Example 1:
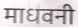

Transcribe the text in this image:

माधवनी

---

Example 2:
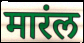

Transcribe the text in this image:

मारंल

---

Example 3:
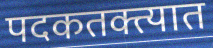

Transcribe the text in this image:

पदकतक्त्यात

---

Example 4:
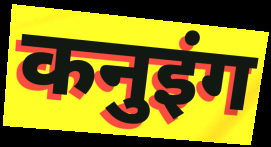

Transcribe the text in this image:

कनुइंग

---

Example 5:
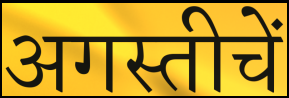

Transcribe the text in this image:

अगस्तीचें